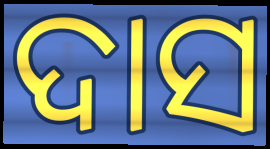
ଦାସ